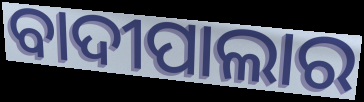
ବାଦୀପାଲାର